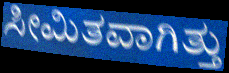
ಸೀಮಿತವಾಗಿತ್ತು